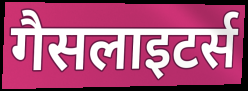
गैसलाइटर्स